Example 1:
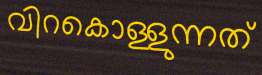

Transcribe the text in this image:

വിറകൊള്ളുന്നത്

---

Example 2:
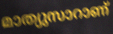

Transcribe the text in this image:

മാത്യുസാറാണ്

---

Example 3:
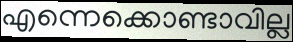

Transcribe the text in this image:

എന്നെക്കൊണ്ടാവില്ല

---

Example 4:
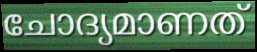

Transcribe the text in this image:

ചോദ്യമാണത്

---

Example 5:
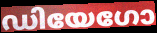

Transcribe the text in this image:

ഡിയേഗോ